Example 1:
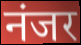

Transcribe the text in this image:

नंजर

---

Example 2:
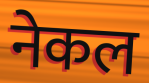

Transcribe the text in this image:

नेकल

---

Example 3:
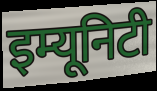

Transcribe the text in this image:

इम्‍यूनिटी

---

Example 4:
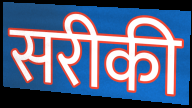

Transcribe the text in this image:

सरीकी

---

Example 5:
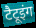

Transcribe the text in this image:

टैटूइंग